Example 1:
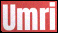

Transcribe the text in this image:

Umri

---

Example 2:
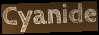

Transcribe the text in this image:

Cyanide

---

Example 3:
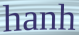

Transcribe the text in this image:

hanh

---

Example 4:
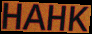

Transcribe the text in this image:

HAHK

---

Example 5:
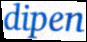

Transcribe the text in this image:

dipen